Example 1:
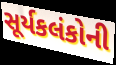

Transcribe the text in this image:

સૂર્યકલંકોની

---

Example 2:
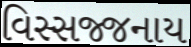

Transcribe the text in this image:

વિસ્સજ્જનાય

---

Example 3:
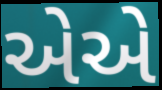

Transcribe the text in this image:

એએ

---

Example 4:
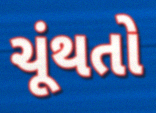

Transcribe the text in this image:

ચૂંથતો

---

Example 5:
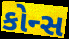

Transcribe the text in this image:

કોન્સ